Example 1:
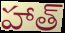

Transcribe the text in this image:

హాత్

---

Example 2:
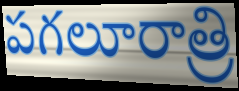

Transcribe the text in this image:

పగలూరాత్రి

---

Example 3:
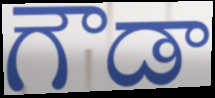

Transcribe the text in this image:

గౌడా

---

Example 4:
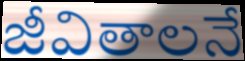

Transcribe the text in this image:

జీవితాలనే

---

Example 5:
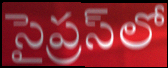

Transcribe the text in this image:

సైప్రస్‌లో